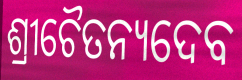
ଶ୍ରୀଚୈତନ୍ୟଦେବ